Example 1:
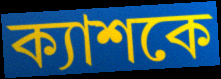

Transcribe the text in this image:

ক্যাশকে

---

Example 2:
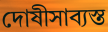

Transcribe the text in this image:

দোষীসাব্যস্ত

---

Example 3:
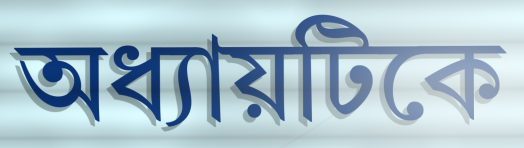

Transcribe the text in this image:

অধ্যায়টিকে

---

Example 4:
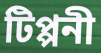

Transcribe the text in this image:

টিপ্পনী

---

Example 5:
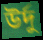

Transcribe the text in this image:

উর্দু